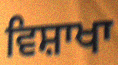
ਵਿਸ਼ਾਖਾ